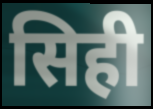
सिही